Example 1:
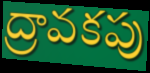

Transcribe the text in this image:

ద్రావకపు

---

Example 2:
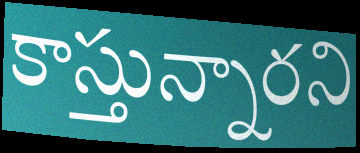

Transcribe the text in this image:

కాస్తున్నారని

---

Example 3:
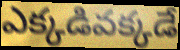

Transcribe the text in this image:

ఎక్కడివక్కడే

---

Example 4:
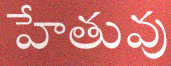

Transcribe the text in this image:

హేతువు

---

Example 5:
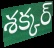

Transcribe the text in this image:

శక్కర్